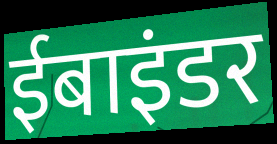
ईबाइंडर